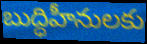
బుద్ధిహీనులకు